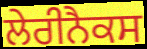
ਲੇਰੀਨੈਕਸ